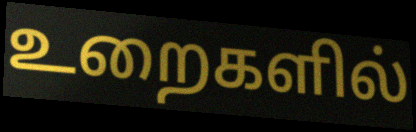
உறைகளில்